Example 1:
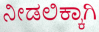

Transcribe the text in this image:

ನೀಡಲಿಕ್ಕಾಗಿ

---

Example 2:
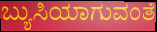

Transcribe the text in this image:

ಬ್ಯುಸಿಯಾಗುವಂತೆ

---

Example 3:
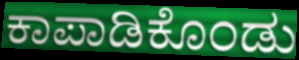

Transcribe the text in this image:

ಕಾಪಾಡಿಕೊಂಡು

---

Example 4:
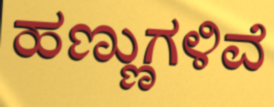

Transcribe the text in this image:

ಹಣ್ಣುಗಳಿವೆ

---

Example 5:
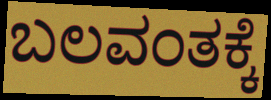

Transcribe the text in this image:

ಬಲವಂತಕ್ಕೆ